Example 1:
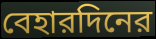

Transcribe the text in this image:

বেহারদিনের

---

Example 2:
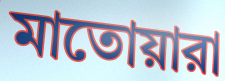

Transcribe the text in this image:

মাতোয়ারা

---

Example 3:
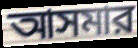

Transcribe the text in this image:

আসমার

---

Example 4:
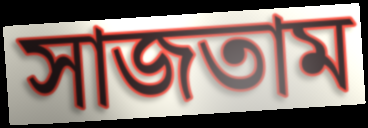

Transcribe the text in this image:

সাজতাম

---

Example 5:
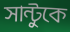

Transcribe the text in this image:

সান্টুকে